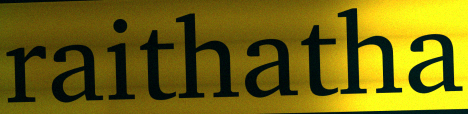
raithatha